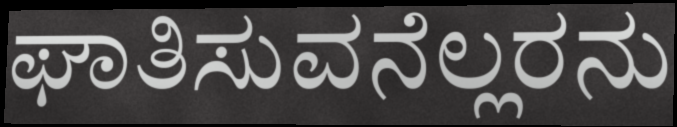
ಘಾತಿಸುವನೆಲ್ಲರನು